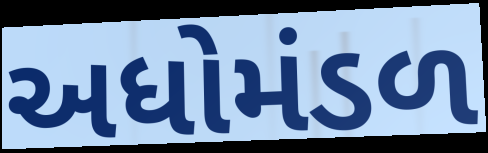
અધોમંડળ